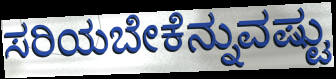
ಸರಿಯಬೇಕೆನ್ನುವಷ್ಟು